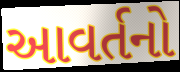
આવર્તનો